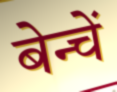
बेन्चें